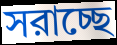
সরাচ্ছে